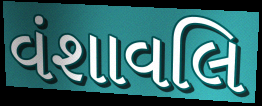
વંશાવલિ